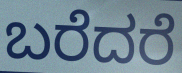
ಬರೆದರೆ